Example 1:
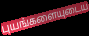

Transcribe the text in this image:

புயங்களையுடைய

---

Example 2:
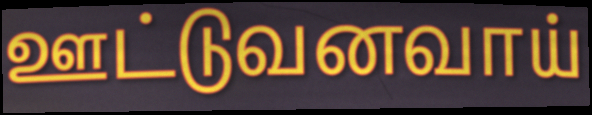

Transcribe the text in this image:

ஊட்டுவனவாய்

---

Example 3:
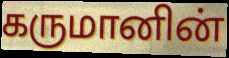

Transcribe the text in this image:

கருமானின்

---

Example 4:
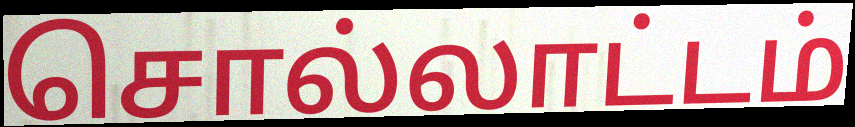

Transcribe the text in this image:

சொல்லாட்டம்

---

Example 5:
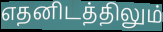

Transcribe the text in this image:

எதனிடத்திலும்